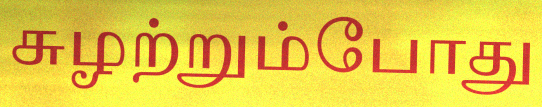
சுழற்றும்போது